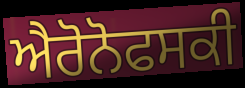
ਐਰੋਨੋਫਸਕੀ